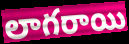
లాగరాయి